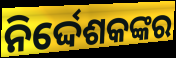
ନିର୍ଦ୍ଦେଶକଙ୍କର